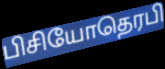
பிசியோதெரபி